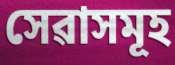
সেৱাসমূহ